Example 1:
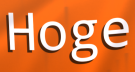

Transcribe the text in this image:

Hoge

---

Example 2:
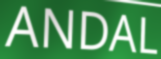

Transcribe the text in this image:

ANDAL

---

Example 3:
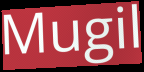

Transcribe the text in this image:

Mugil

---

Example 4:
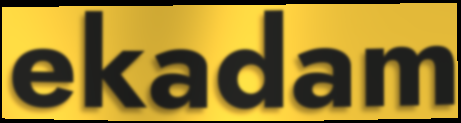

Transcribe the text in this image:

ekadam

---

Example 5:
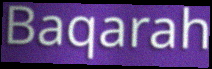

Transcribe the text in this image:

Baqarah